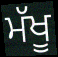
ਮੱਖੂ